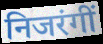
निजरंगीं